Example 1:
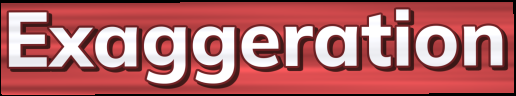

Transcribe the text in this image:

Exaggeration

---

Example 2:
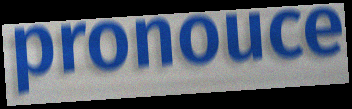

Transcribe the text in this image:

pronouce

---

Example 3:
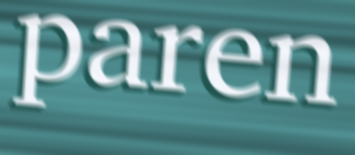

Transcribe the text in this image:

paren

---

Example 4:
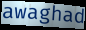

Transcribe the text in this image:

awaghad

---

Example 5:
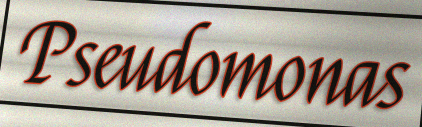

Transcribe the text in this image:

Pseudomonas